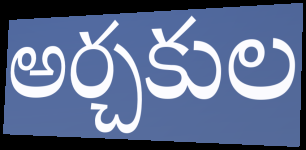
అర్చకుల